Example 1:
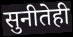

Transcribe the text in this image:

सुनीतेही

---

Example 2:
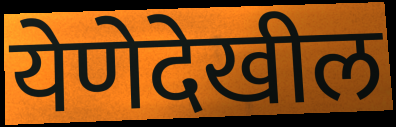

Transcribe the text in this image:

येणेदेखील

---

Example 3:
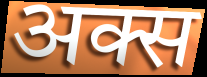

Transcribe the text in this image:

अक्स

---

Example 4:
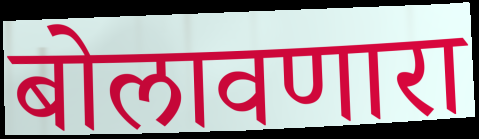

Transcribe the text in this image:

बोलावणारा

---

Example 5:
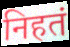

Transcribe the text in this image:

निहतं